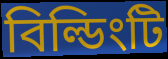
বিল্ডিংটি